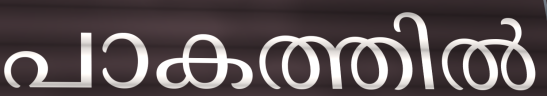
പാകത്തിൽ